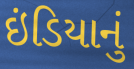
ઇંડિયાનું